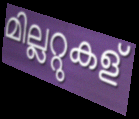
മില്ലറ്റുകള്